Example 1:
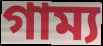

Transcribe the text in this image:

গাম্য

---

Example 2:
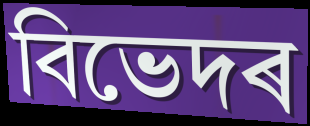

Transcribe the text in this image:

বিভেদৰ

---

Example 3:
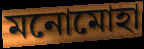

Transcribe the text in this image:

মনোমোহা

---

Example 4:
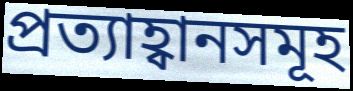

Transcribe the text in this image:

প্ৰত্যাহ্বানসমূহ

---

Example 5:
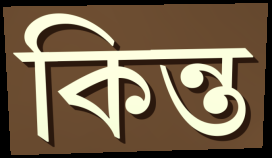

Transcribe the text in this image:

কিন্ত